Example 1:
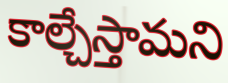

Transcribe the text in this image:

కాల్చేస్తామని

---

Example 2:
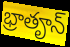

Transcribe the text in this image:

భ్రాతౄన్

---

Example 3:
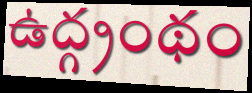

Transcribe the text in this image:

ఉద్గ్రంథం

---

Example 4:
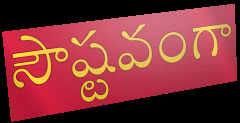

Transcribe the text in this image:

సౌష్టవంగా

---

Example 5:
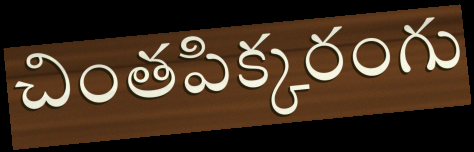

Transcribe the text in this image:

చింతపిక్కరంగు